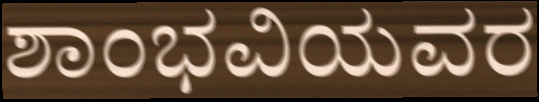
ಶಾಂಭವಿಯವರ